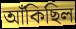
আঁকিছিল